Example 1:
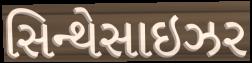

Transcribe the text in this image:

સિન્થેસાઇઝર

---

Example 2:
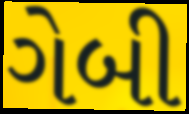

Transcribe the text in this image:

ગેબી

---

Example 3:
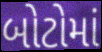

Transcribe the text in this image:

બોટોમાં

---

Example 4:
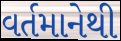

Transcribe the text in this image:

વર્તમાનેથી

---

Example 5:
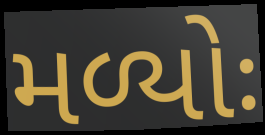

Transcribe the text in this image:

મળ્યોઃ